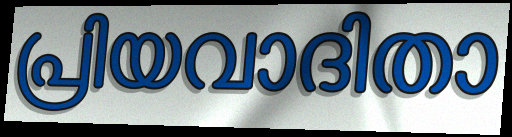
പ്രിയവാദിതാ